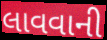
લાવવાની